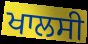
ਖਾਲਸੀ